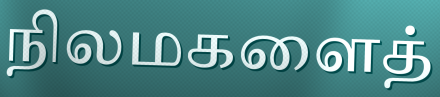
நிலமகளைத்